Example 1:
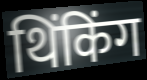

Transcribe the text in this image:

थिंकिंग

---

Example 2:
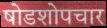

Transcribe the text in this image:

षोडशोपचार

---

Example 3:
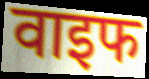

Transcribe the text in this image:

वाइफ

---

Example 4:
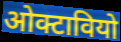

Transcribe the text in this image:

ओक्टावियो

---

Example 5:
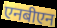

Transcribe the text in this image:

एनबीएन